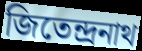
জিতেন্দ্রনাথ